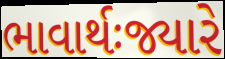
ભાવાર્થઃજ્યારે